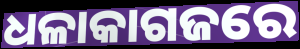
ଧଳାକାଗଜରେ